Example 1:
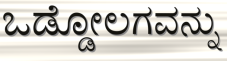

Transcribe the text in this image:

ಒಡ್ಡೋಲಗವನ್ನು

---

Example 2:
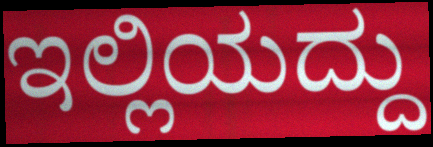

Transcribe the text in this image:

ಇಲ್ಲಿಯದ್ದು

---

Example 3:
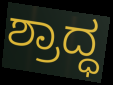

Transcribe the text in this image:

ಶ್ರಾದ್ಧ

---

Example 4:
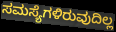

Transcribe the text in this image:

ಸಮಸ್ಯೆಗಳಿರುವುದಿಲ್ಲ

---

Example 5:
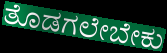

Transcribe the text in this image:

ತೊಡಗಲೇಬೇಕು